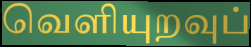
வெளியுறவுப்